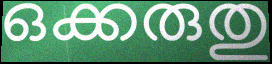
ഒക്കരുതു